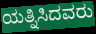
ಯತ್ನಿಸಿದವರು